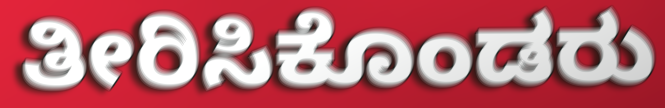
ತೀರಿಸಿಕೊಂಡರು